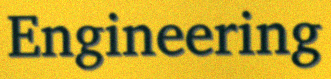
Engineering